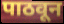
पाठवून